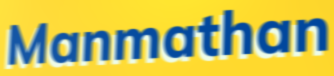
Manmathan